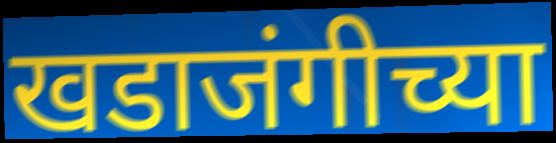
खडाजंगीच्या